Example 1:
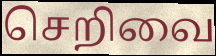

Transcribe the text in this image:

செறிவை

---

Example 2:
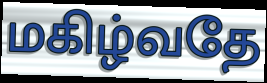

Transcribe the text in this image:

மகிழ்வதே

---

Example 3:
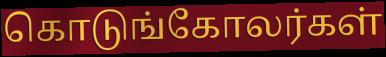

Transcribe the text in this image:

கொடுங்கோலர்கள்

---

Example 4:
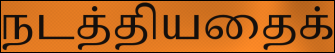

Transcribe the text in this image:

நடத்தியதைக்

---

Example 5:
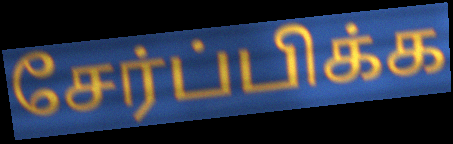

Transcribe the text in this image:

சேர்ப்பிக்க